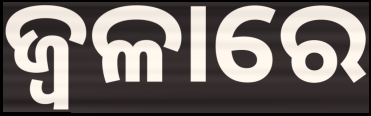
ଜ୍ୱଳାରେ